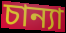
চান্যা